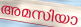
അമസിയാ